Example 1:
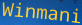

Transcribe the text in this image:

Winmani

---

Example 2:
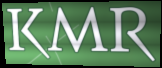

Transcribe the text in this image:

KMR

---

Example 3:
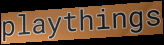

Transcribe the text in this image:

playthings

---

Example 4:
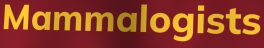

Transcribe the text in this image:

Mammalogists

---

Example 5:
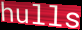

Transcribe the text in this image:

hulls